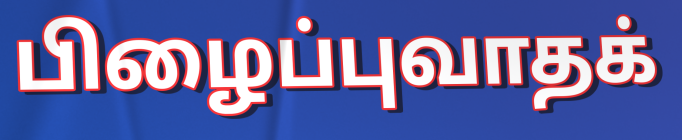
பிழைப்புவாதக்